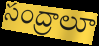
సంద్రాలూ